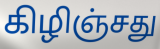
கிழிஞ்சது